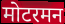
मोटरमन